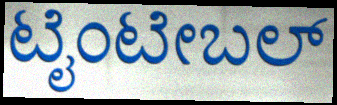
ಟೈಂಟೇಬಲ್